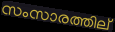
സംസാരത്തില്